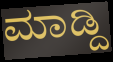
ಮಾಡ್ದಿ